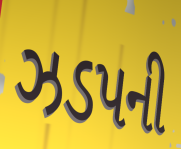
ઝડપની